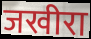
जखीरा